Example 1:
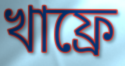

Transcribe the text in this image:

খাফ্রে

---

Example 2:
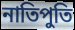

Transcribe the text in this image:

নাতিপুতি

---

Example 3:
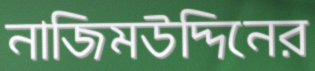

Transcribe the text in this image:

নাজিমউদ্দিনের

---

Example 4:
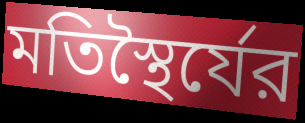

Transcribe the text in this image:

মতিস্থৈর্যের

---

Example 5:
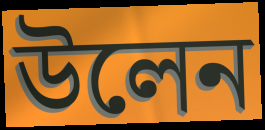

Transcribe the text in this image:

উলেন